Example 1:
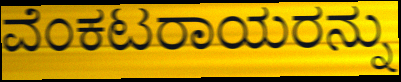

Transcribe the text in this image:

ವೆಂಕಟರಾಯರನ್ನು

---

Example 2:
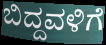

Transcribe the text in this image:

ಬಿದ್ದವಳಿಗೆ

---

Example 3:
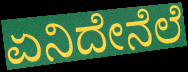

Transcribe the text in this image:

ಏನಿದೇನೆಲೆ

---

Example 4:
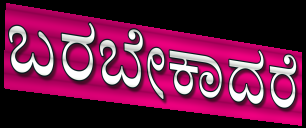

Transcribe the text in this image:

ಬರಬೇಕಾದರೆ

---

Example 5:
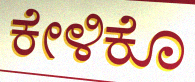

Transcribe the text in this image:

ಕೇಳಿಕೊ